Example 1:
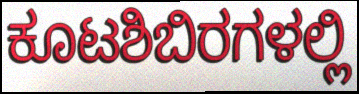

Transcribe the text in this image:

ಕೂಟಶಿಬಿರಗಳಲ್ಲಿ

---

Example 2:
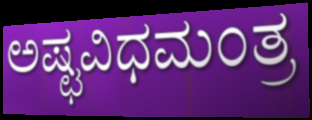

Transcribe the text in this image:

ಅಷ್ಟವಿಧಮಂತ್ರ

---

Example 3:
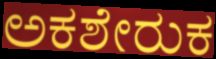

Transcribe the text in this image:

ಅಕಶೇರುಕ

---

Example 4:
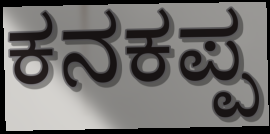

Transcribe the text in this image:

ಕನಕಪ್ಪ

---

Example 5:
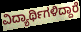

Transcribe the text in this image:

ವಿದ್ಯಾರ್ಥಿಗಳಿದ್ದಾರೆ